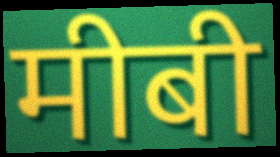
मीबी